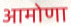
आमोणा